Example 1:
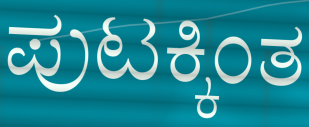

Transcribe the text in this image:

ಪುಟಕ್ಕಿಂತ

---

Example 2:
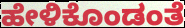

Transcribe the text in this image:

ಹೇಳಿಕೊಂಡಂತೆ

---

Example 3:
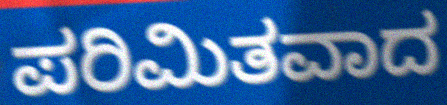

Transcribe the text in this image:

ಪರಿಮಿತವಾದ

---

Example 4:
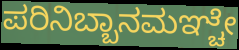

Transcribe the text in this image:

ಪರಿನಿಬ್ಬಾನಮಞ್ಚೇ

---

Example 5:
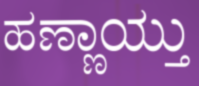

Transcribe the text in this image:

ಹಣ್ಣಾಯ್ತು